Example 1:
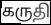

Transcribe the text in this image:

கருதி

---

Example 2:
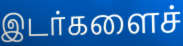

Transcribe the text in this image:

இடர்களைச்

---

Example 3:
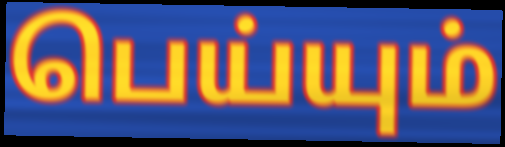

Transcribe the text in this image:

பெய்யும்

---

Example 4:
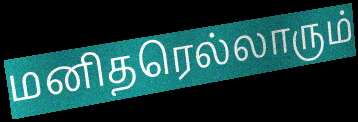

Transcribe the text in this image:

மனிதரெல்லாரும்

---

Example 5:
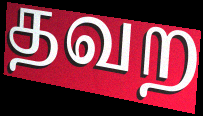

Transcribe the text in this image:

தவற